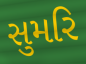
સુમરિ